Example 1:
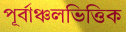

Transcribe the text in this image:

পূর্বাঞ্চলভিত্তিক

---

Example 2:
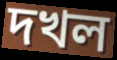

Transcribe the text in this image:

দখল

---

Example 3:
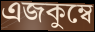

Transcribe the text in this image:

এজকুম্বে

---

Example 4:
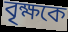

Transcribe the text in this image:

বৃক্ষকে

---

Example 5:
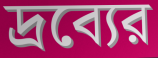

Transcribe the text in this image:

দ্রব্যের